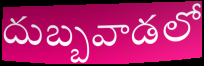
దుబ్బవాడలో